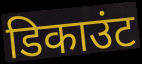
डिकाउंट